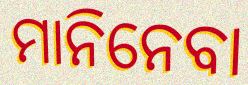
ମାନିନେବା